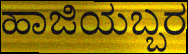
ಹಾಜಿಯಬ್ಬರ